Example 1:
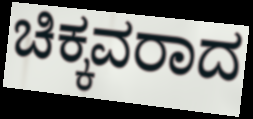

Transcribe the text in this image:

ಚಿಕ್ಕವರಾದ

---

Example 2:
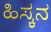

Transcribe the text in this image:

ಹಿಸ್ಕನ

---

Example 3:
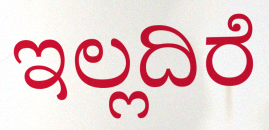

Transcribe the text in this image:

ಇಲ್ಲದಿರೆ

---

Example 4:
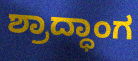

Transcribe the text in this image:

ಶ್ರಾದ್ಧಾಂಗ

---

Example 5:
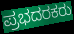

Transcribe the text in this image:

ಪ್ರಭದರಕರು